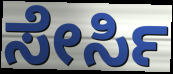
ಸೇರ್ಸಿ